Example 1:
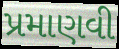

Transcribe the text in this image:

પ્રમાણવી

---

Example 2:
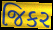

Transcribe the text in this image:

જિકર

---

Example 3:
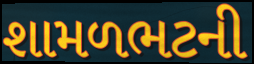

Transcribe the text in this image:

શામળભટની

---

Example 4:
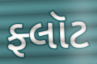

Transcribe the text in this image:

ફ્લૉટ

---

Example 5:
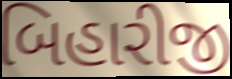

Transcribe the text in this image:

બિહારીજી